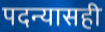
पदन्यासही